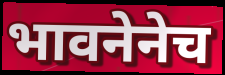
भावनेनेच